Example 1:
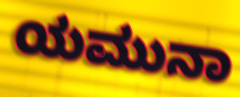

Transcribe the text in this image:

ಯಮುನಾ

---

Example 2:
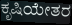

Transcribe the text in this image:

ಕೃಷಿಯೇತರ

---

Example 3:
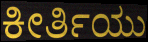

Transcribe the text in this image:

ಕೀರ್ತಿಯು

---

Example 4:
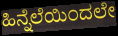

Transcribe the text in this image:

ಹಿನ್ನೆಲೆಯಿಂದಲೇ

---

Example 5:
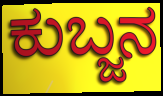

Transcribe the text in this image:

ಕುಬ್ಜನ